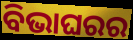
ବିଭାଘରର